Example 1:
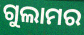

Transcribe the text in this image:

ଗୁଲାମର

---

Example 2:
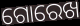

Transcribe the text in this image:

ଗୋରେଖ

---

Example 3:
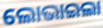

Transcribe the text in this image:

ଲୋଭାଇଲା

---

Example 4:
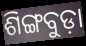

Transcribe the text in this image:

ଶିଙ୍ଗବୁଡ଼ା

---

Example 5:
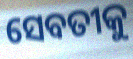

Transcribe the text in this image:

ସେବତୀକୁ